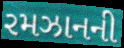
રમઝાનની